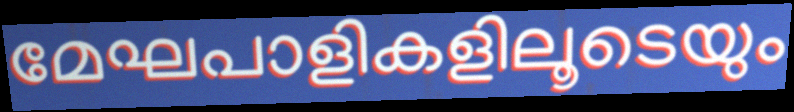
മേഘപാളികളിലൂടെയും